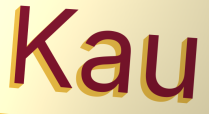
Kau